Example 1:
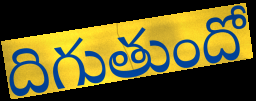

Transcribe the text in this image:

దిగుతుందో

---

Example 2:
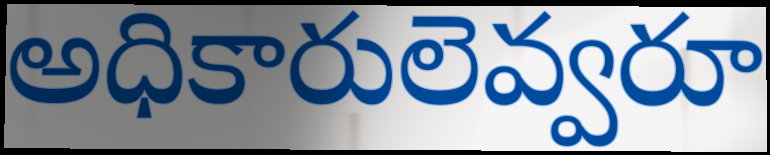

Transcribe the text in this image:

అధికారులెవ్వరూ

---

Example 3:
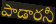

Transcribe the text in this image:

పాడారనీ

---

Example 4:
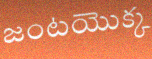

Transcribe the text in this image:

జంటయొక్క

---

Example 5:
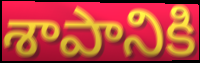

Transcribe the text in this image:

శాపానికి